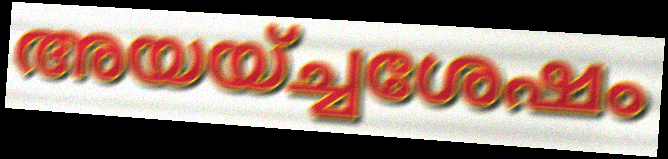
അയയ്ച്ചശേഷം